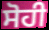
ਸੋਹੀ